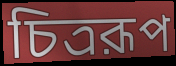
চিত্ররূপ